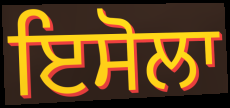
ਇਸੋਲਾ